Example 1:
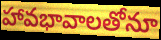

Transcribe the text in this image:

హావభావాలతోనూ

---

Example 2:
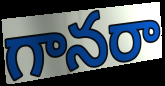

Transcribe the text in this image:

గానరా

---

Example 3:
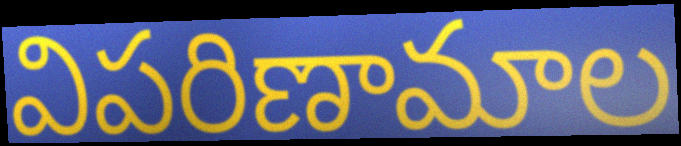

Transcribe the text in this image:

విపరిణామాల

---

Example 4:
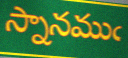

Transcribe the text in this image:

స్నానముఁ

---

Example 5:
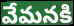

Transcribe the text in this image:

వేమనకి